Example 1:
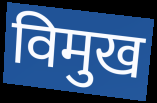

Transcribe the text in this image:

विमुख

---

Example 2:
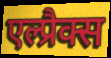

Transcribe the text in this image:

एल्प्रैक्स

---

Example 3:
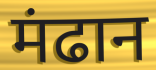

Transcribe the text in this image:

मंढान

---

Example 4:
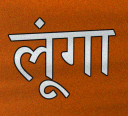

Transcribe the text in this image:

लूंगा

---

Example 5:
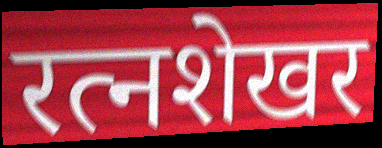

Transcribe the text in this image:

रत्नशेखर